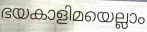
ഭയകാളിമയെല്ലാം